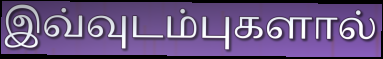
இவ்வுடம்புகளால்